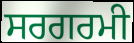
ਸਰਗਰਮੀ